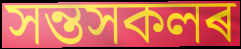
সন্তসকলৰ